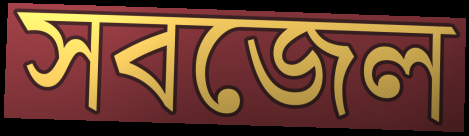
সবজেল